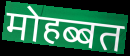
मोहब्बत